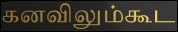
கனவிலும்கூட